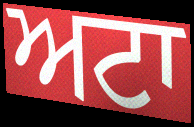
ਅਟਾ